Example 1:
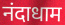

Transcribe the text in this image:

नंदाधाम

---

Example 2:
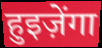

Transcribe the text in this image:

हुइज़ेंगा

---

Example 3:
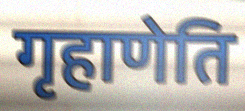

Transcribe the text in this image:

गृहाणेति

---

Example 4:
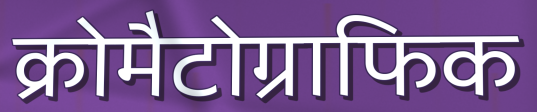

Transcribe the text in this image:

क्रोमैटोग्राफिक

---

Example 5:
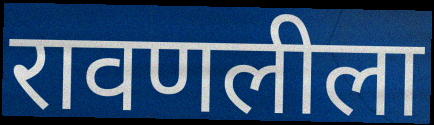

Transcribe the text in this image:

रावणलीला